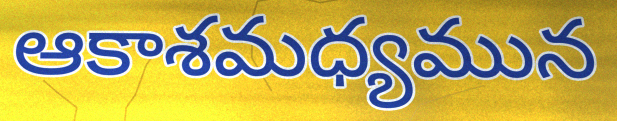
ఆకాశమధ్యమున